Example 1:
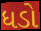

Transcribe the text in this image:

ધડો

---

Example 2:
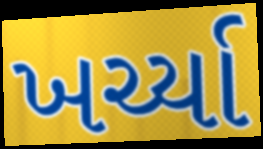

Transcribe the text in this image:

ખર્ચ્યા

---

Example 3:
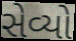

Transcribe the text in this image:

સેવ્યો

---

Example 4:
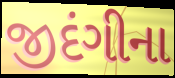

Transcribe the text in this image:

જીદંગીના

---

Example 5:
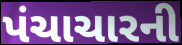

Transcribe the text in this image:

પંચાચારની